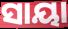
ସାୟା